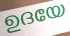
ഉദയേ